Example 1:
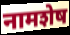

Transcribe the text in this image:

नामशेष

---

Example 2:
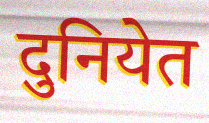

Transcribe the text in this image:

दुनियेत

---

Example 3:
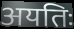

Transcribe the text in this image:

अयतिः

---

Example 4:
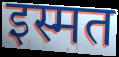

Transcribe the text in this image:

इस्मत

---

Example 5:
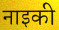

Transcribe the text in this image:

नाइकी